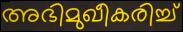
അഭിമുഖീകരിച്ച്